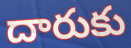
దారుకు